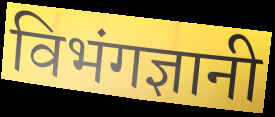
विभंगज्ञानी